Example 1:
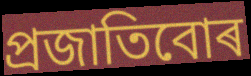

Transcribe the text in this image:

প্ৰজাতিবোৰ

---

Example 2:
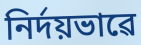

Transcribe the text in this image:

নিৰ্দয়ভাৱে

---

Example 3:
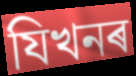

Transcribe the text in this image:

যিখনৰ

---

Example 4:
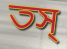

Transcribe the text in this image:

তস্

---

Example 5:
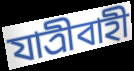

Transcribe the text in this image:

যাত্ৰীবাহী